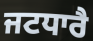
ਜਟਧਾਰੈ